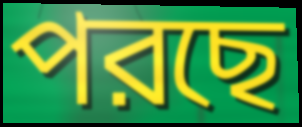
পরছে